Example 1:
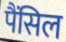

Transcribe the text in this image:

पैंसिल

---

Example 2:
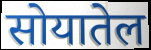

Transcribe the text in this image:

सोयातेल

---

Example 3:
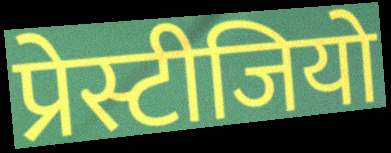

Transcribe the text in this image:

प्रेस्टीजियो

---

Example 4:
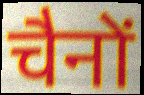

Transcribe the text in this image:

चैनों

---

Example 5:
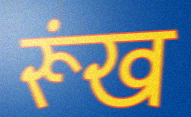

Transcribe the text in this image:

रूंख